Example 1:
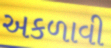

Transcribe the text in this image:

અકળાવી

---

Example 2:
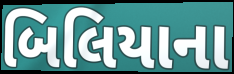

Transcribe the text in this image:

બિલિયાના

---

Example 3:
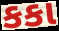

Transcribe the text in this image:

કકા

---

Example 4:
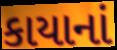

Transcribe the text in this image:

કાયાનાં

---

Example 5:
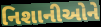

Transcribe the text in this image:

નિશાનીઓને